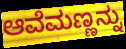
ಆವೆಮಣ್ಣನ್ನು